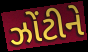
ઝોંટીને